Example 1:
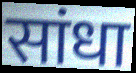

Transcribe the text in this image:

सांधा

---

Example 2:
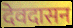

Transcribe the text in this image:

देवदासन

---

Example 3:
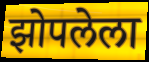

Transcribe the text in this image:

झोपलेला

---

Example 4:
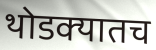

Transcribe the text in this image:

थोडक्यातच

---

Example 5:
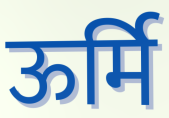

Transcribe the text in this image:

ऊर्मि